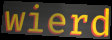
wierd